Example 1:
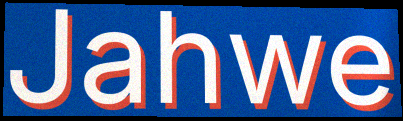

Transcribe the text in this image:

Jahwe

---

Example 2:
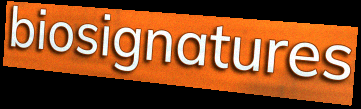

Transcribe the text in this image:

biosignatures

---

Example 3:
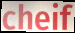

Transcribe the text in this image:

cheif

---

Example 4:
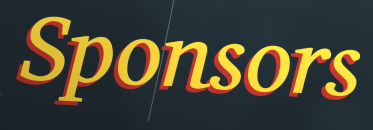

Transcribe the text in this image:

Sponsors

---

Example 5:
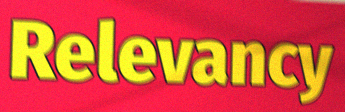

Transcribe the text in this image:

Relevancy